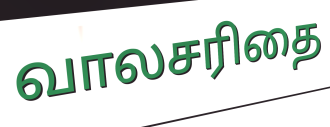
வாலசரிதை